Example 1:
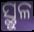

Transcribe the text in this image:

ସ୍ଥୁଳ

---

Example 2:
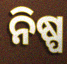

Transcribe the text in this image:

ନିଷ୍ପ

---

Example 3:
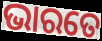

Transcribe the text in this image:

ଭାରତେ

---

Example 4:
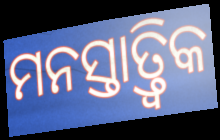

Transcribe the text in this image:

ମନସ୍ତାତ୍ତ୍ଵିକ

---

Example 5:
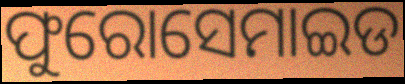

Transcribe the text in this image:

ଫୁରୋସେମାଇଡ